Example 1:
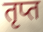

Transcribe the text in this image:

तृप्त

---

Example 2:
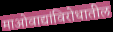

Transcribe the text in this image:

माओवाद्यांविरोधातील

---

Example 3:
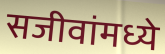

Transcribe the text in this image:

सजीवांमध्ये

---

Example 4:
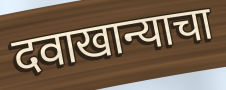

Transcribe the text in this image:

दवाखान्याचा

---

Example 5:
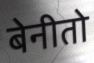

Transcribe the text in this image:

बेनीतो